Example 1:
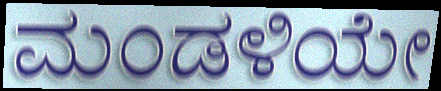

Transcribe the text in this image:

ಮಂಡಳಿಯೇ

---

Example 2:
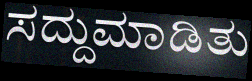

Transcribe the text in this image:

ಸದ್ದುಮಾಡಿತು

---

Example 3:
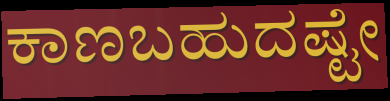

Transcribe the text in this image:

ಕಾಣಬಹುದಷ್ಟೇ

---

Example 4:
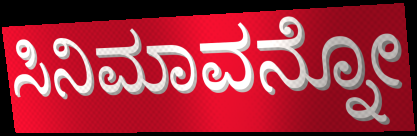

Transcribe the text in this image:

ಸಿನಿಮಾವನ್ನೋ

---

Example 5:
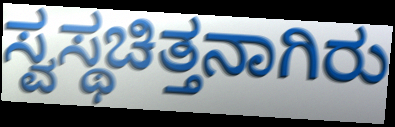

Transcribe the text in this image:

ಸ್ವಸ್ಥಚಿತ್ತನಾಗಿರು